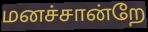
மனச்சான்றே